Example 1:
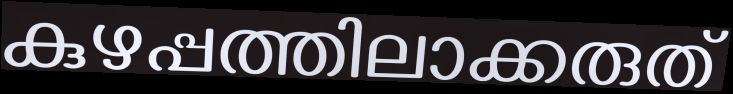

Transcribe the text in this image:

കുഴപ്പത്തിലാക്കരുത്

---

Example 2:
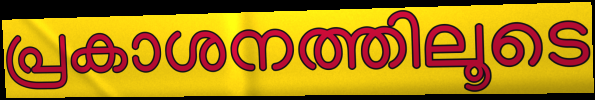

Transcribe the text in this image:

പ്രകാശനത്തിലൂടെ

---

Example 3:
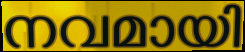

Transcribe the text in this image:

നവമായി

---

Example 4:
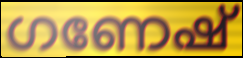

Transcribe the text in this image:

ഗണേഷ്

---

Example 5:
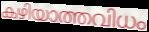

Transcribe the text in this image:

കഴിയാത്തവിധം